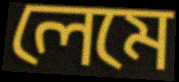
লেমে